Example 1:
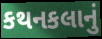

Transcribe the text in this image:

કથનકલાનું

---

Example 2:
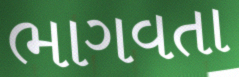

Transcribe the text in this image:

ભાગવતા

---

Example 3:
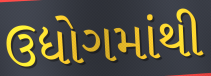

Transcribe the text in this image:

ઉદ્યોગમાંથી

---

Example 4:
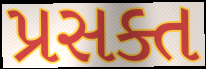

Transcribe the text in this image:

પ્રસક્ત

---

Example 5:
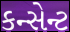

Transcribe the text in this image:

કન્સેન્ટ